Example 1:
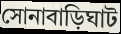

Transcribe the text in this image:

সোনাবাড়িঘাট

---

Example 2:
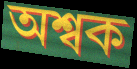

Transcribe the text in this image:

অশ্বক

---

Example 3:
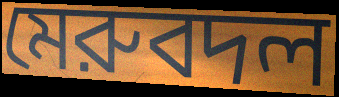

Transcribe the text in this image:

মেরুবদল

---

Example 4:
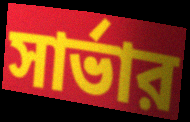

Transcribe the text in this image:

সার্ভার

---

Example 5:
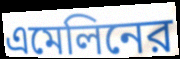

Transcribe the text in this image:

এমেলিনের